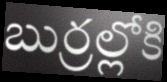
బుర్రల్లోకి